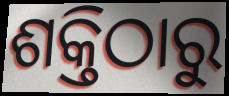
ଶକ୍ତିଠାରୁ